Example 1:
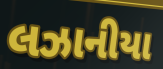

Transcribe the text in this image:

લઝાનીયા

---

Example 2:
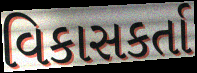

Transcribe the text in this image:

વિકાસકર્તા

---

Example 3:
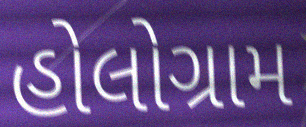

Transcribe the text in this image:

હોલોગ્રામ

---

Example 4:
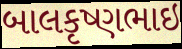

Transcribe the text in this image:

બાલકૃષ્ણભાઇ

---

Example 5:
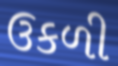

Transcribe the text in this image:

ઉકળી